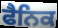
ਫੈਨਿਕ